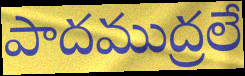
పాదముద్రలే